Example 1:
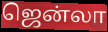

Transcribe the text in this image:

ஜென்லா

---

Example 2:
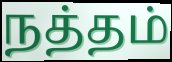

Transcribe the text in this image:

நத்தம்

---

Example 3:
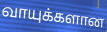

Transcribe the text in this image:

வாயுக்களான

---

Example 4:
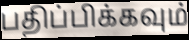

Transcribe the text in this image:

பதிப்பிக்கவும்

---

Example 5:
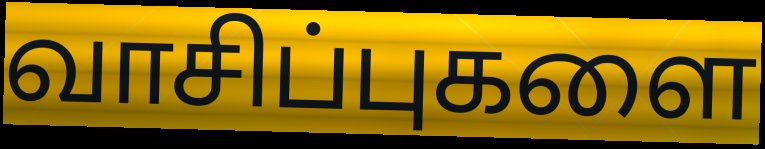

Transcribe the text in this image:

வாசிப்புகளை